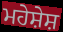
ਮਹੇਸ਼ੇਸ਼